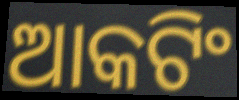
ଆକଟିଂ